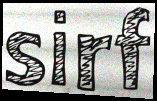
sirf